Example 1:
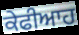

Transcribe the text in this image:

ਕੇਫੀਆਹ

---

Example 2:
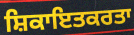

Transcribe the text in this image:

ਸ਼ਿਕਾਇਤਕਰਤਾ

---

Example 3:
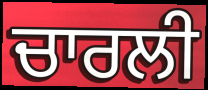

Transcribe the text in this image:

ਚਾਰਲੀ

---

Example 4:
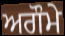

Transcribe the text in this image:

ਅਗੌਮੇ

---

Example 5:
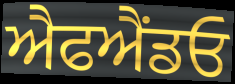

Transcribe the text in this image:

ਐਫਐਂਡਓ